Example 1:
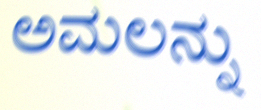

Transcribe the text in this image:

ಅಮಲನ್ನು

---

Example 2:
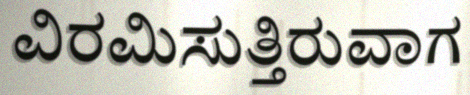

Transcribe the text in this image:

ವಿರಮಿಸುತ್ತಿರುವಾಗ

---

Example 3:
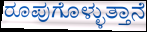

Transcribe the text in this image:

ರೂಪುಗೊಳ್ಳುತ್ತಾನೆ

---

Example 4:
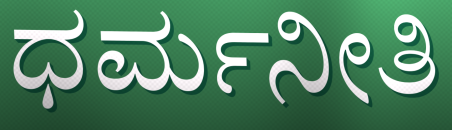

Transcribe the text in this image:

ಧರ್ಮನೀತಿ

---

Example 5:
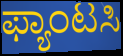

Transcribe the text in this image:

ಫ್ಯಾಂಟಸಿ